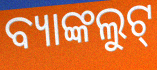
ବ୍ୟାଙ୍କଲୁଟ୍